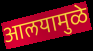
आलयामुळे